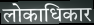
लोकाधिकार